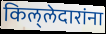
किल्लेदारांना